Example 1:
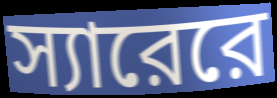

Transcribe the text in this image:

স্যারেরে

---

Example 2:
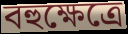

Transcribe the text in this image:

বহুক্ষেত্রে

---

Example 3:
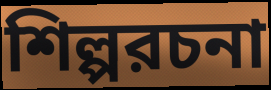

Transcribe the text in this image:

শিল্পরচনা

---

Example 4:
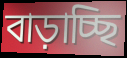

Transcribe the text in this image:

বাড়াচ্ছি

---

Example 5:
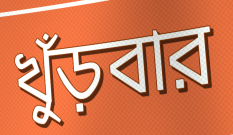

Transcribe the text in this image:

খুঁড়বার